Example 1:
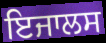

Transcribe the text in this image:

ਇਜਾਲਸ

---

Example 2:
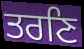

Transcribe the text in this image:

ਤਰਣਿ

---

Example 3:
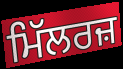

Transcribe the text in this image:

ਮਿੱਲਰਜ਼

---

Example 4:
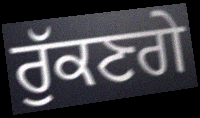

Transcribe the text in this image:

ਰੁੱਕਣਗੇ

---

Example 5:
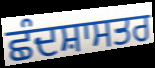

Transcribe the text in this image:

ਛੰਦਸ਼ਾਸਤਰ